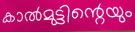
കാൽമുട്ടിന്റെയും